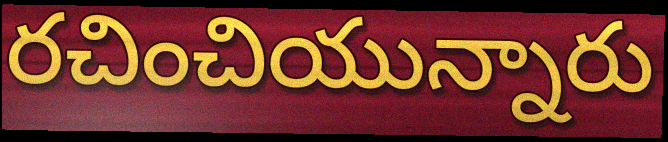
రచించియున్నారు